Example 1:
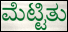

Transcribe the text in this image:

ಮೆಟ್ಟಿತು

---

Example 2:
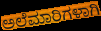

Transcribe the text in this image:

ಅಲೆಮಾರಿಗಳಾಗಿ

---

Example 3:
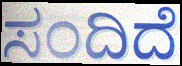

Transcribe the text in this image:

ಸಂದಿದೆ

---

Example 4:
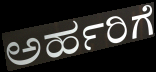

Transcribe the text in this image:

ಅರ್ಹರಿಗೆ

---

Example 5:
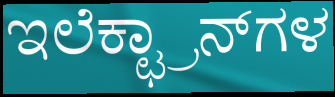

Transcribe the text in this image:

ಇಲೆಕ್ಟ್ರಾನ್‍ಗಳ